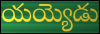
యయ్యెడు